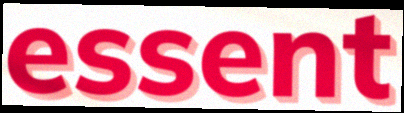
essent